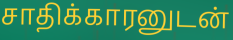
சாதிக்காரனுடன்